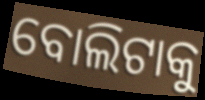
ବୋଲିଟାକୁ